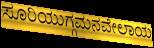
ಸೂರಿಯುಗ್ಗಮನವೇಲಾಯ